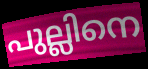
പുല്ലിനെ